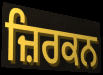
ਜ਼ਿਰਕਨ